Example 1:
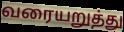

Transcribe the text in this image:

வரையறுத்து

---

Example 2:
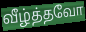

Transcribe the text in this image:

வீழ்த்தவோ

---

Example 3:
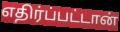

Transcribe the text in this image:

எதிர்ப்பட்டான்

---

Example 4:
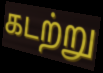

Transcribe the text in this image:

கடற்று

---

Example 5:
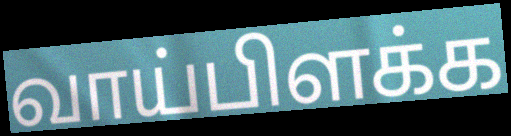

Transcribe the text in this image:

வாய்பிளக்க